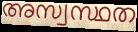
അസ്വസ്ഥത